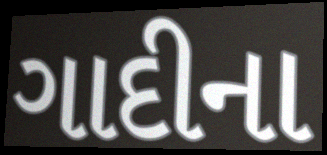
ગાદીના